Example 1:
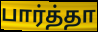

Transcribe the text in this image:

பார்த்தா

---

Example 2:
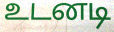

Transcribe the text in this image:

உடனடி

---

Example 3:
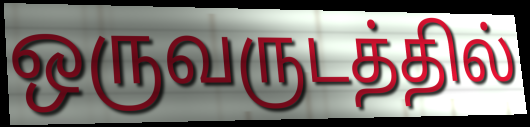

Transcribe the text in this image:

ஒருவருடத்தில்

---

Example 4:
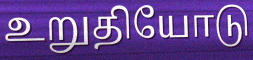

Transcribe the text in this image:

உறுதியோடு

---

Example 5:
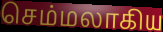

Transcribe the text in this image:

செம்மலாகிய